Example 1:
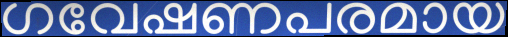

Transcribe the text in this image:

ഗവേഷണപരമായ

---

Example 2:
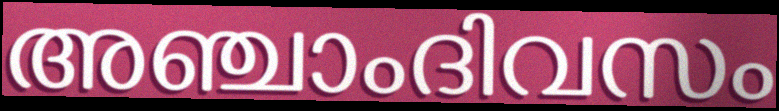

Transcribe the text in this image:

അഞ്ചാംദിവസം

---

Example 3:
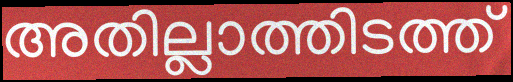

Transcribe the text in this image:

അതില്ലാത്തിടത്ത്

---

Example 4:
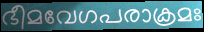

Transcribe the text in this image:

ഭീമവേഗപരാക്രമഃ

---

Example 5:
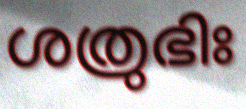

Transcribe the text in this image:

ശത്രുഭിഃ